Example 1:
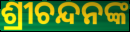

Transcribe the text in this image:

ଶ୍ରୀଚନ୍ଦନଙ୍କ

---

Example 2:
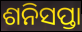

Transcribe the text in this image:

ଶନିସପ୍ତା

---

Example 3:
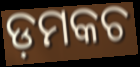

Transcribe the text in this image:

ଡ଼ମକଚ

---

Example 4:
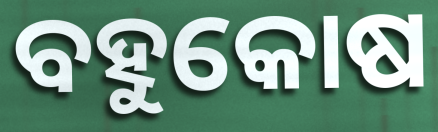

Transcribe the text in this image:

ବହୁକୋଷ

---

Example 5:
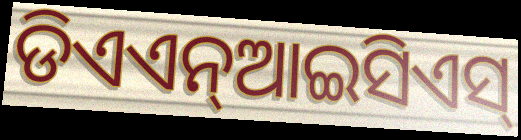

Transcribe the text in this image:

ଡିଏଏନ୍ଆଇସିଏସ୍